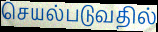
செயல்படுவதில்